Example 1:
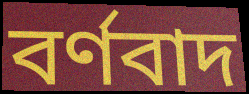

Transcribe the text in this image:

বৰ্ণবাদ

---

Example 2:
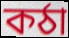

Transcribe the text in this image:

কঠা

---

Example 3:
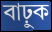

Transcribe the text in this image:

বাঢ়ুক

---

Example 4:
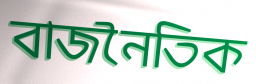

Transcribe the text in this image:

বাজনৈতিক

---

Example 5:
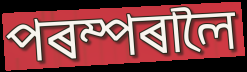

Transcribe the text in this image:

পৰম্পৰালৈ